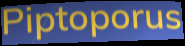
Piptoporus